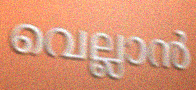
വെല്ലാൻ